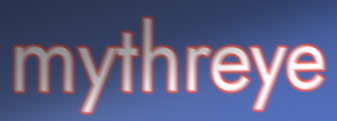
mythreye